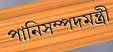
পানিসম্পদমন্ত্রী